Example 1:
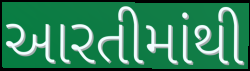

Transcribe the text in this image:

આરતીમાંથી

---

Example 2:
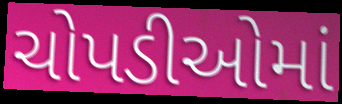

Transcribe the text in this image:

ચોપડીઓમાં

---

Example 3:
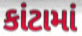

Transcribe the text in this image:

કાંટામાં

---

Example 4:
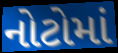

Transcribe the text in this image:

નોટોમાં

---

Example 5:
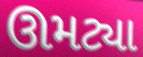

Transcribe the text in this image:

ઊમટ્યા